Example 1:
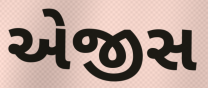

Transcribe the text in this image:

એજીસ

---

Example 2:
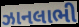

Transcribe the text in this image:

ઝાનલાભી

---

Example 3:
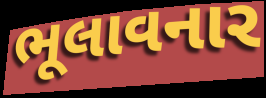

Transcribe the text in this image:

ભૂલાવનાર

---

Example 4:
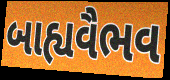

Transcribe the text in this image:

બાહ્યવૈભવ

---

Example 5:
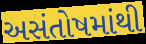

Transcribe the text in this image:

અસંતોષમાંથી